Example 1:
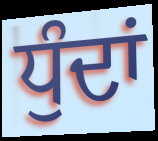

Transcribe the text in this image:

ਧੁੰਦਾਂ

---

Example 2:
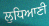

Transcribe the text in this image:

ਲੁਧਿਆਣੀ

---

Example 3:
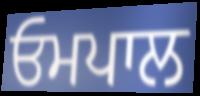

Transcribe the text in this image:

ਓਮਪਾਲ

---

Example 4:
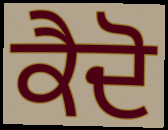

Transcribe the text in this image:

ਕੈਦੋ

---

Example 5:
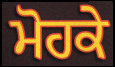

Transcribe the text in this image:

ਮੋਹਕੇ